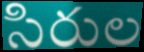
సిరుల